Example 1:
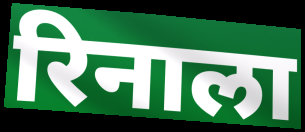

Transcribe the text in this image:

रिनाला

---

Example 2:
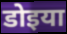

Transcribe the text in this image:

डोइया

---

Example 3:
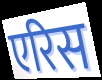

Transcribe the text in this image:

एरिस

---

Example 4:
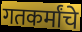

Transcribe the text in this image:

गतकर्मांचे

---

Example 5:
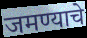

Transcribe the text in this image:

जमण्याचे